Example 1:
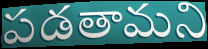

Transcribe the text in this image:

పడతామని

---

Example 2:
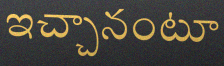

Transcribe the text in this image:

ఇచ్చానంటూ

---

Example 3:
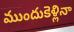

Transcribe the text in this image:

ముందుకెళ్లినా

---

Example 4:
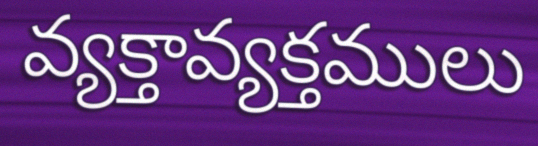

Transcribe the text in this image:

వ్యక్తావ్యక్తములు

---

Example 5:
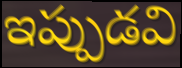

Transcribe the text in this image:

ఇప్పుడవి